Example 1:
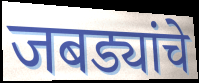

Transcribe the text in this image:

जबड्यांचे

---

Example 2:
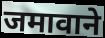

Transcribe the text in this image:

जमावाने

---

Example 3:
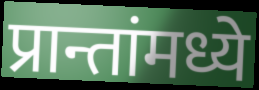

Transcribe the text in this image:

प्रान्तांमध्ये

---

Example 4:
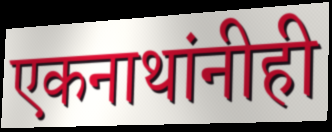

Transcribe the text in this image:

एकनाथांनीही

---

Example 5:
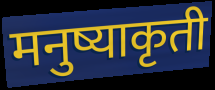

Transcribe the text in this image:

मनुष्याकृती